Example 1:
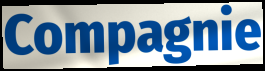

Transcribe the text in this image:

Compagnie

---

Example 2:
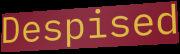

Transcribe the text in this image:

Despised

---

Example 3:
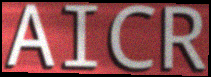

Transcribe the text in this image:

AICR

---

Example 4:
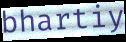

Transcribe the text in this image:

bhartiy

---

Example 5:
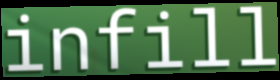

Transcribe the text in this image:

infill